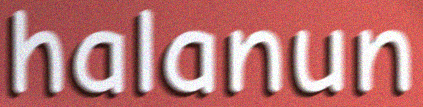
halanun